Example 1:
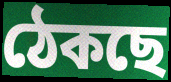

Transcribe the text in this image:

ঠেকছে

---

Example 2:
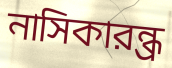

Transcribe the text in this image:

নাসিকারন্ধ্র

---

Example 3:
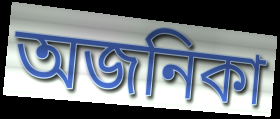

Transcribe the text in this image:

অজনিকা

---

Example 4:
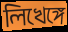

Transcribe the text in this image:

লিখেঙ্গে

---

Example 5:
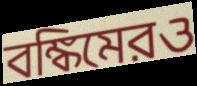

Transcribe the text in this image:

বঙ্কিমেরও